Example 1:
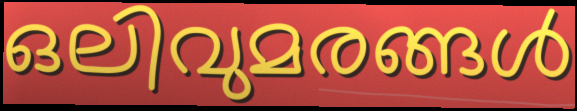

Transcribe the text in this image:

ഒലിവുമരങ്ങൾ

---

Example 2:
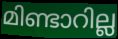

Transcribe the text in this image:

മിണ്ടാറില്ല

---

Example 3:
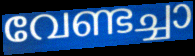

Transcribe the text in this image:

വേണ്ടച്ചാ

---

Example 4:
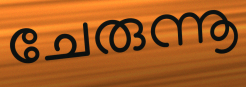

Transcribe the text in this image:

ചേരുന്നൂ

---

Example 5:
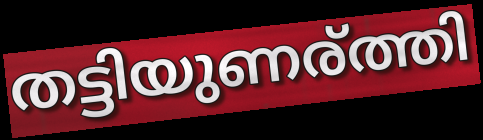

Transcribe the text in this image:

തട്ടിയുണര്ത്തി